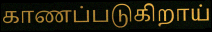
காணப்படுகிறாய்